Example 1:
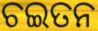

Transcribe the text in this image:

ଚଇତନ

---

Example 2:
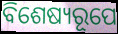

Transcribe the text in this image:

ବିଶେଷ୍ୟରୂପେ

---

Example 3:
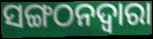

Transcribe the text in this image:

ସଙ୍ଗଠନଦ୍ୱାରା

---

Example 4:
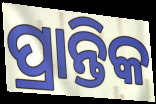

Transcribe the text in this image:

ପ୍ରାନ୍ତିକ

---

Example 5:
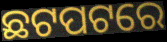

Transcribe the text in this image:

ଛଟପଟରେ